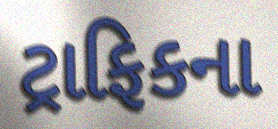
ટ્રાફિકના